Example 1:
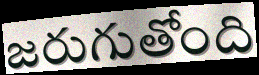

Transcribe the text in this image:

జరుగుతోంది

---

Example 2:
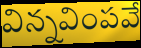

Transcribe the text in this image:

విన్నవింపవే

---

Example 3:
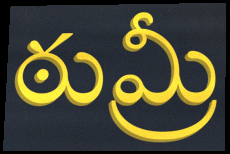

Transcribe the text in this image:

ఠుమ్రీ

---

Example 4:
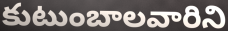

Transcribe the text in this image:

కుటుంబాలవారిని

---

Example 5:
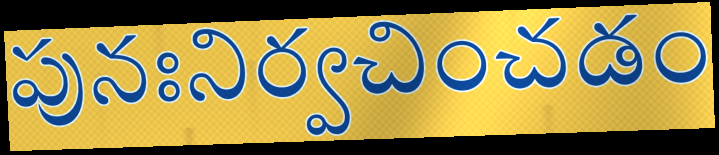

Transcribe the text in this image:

పునఃనిర్వచించడం